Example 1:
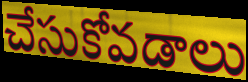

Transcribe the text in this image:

చేసుకోవడాలు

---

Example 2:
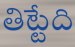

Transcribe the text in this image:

తిట్టేది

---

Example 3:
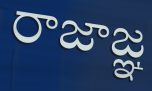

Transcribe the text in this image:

రాజాజ్ఞ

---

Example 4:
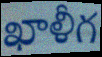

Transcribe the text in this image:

ఖాళీగ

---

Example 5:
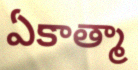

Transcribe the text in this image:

ఏకాత్మా